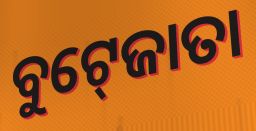
ବୁଟ୍‍ଜୋତା